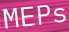
MEPs